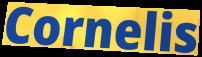
Cornelis